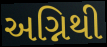
અગ્નિથી